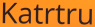
Katrtru